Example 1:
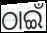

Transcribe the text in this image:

ଠାଇଁ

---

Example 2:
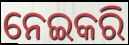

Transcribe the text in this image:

ନେଇକରି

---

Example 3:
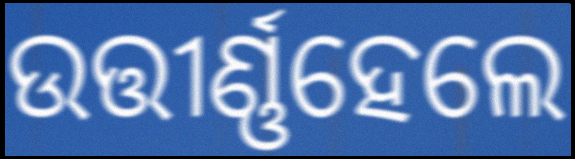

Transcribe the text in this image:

ଉତ୍ତୀର୍ଣ୍ଣହେଲେ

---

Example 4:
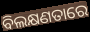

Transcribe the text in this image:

ବିଲକ୍ଷଣତାରେ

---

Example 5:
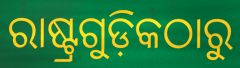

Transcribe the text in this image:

ରାଷ୍ଟ୍ରଗୁଡ଼ିକଠାରୁ